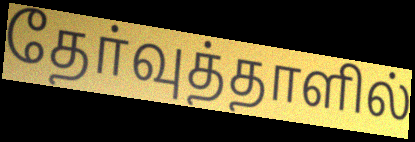
தேர்வுத்தாளில்